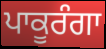
ਪਾਕੂਰੰਗਾ